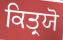
ਕਿਤ੍ਰਯੋ